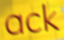
ack